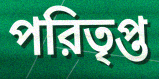
পরিতৃপ্ত